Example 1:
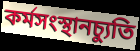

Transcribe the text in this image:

কর্মসংস্থানচ্যুতি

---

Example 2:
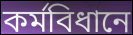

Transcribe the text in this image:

কর্মবিধানে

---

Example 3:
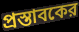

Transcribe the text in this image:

প্রস্তাবকের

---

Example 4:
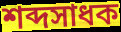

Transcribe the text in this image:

শব্দসাধক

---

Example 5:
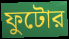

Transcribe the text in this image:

ফুটোর